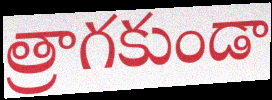
త్రాగకుండా